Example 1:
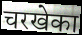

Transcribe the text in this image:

चरखेका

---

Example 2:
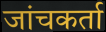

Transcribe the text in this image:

जांचकर्ता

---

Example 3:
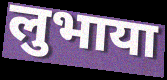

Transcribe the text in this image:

लुभाया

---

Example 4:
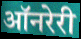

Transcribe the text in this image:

ऑनरेरी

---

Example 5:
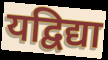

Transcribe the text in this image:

यद्विद्या